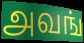
அவங்